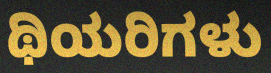
ಥಿಯರಿಗಳು